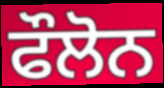
ਫੌਲੋਨ